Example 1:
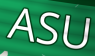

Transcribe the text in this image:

ASU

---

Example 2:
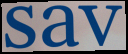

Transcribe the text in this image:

sav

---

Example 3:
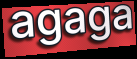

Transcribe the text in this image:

agaga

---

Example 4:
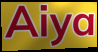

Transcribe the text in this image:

Aiya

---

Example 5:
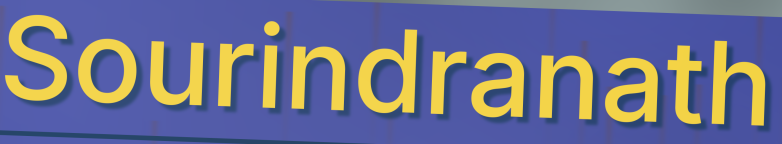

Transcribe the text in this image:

Sourindranath